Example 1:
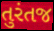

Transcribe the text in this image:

તુરંતજ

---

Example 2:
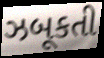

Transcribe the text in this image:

ઝબૂકતી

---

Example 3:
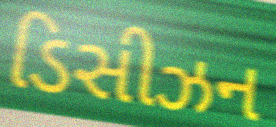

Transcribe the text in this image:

ડિસીઝન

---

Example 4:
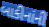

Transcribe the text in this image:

બાકીનાંની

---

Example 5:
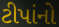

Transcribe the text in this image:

ટીપાંનો